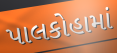
પાલકોહામાં